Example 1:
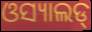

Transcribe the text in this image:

ଓସ୍ୟାଲଡ୍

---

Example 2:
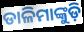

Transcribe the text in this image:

ଡାଳିମାଙ୍କୁଡ଼ି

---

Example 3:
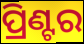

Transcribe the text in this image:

ପ୍ରିଣ୍ଟର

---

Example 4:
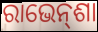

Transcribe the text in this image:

ରାଭେନ୍‌ଶା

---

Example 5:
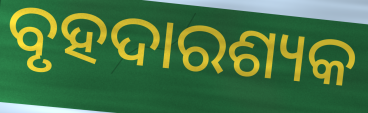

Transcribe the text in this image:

ବୃହଦାରଶ୍ୟକ